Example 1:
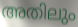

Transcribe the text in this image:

അതിലും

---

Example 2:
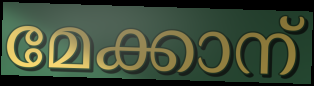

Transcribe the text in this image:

മേക്കാന്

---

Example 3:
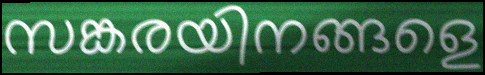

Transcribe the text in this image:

സങ്കരയിനങ്ങളെ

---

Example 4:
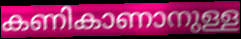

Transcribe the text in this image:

കണികാണാനുള്ള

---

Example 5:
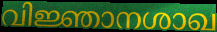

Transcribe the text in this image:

വിജ്ഞാനശാഖ